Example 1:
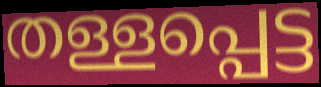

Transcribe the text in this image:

തള്ളപ്പെട്ട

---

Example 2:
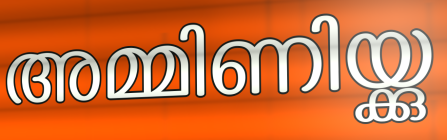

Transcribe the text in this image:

അമ്മിണിയ്ക്കു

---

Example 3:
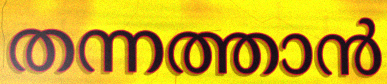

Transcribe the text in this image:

തന്നത്താൻ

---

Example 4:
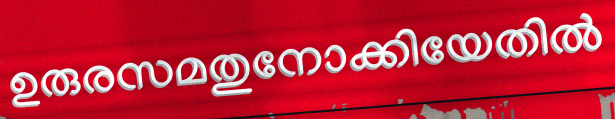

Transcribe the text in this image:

ഉരുരസമതുനോക്കിയേതിൽ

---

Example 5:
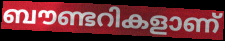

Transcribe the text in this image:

ബൗണ്ടറികളാണ്